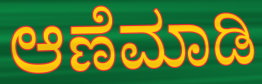
ಆಣೆಮಾಡಿ